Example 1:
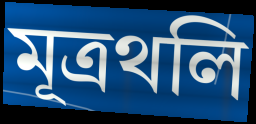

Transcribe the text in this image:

মূত্রথলি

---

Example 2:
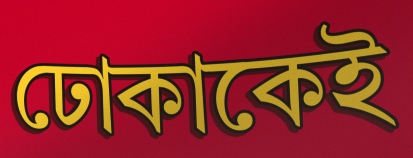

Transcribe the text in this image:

ঢোকাকেই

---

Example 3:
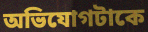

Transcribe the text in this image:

অভিযোগটাকে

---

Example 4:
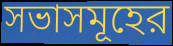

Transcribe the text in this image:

সভাসমূহের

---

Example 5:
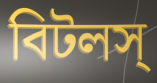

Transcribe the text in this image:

বিটলস্